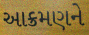
આક્રમણને